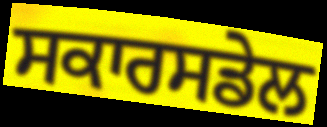
ਸਕਾਰਸਡੇਲ